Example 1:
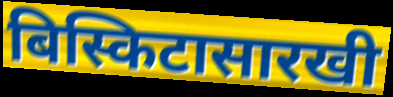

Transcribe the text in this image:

बिस्किटासारखी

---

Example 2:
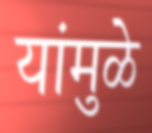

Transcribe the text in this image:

यांमुळे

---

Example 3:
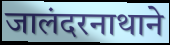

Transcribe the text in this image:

जालंदरनाथाने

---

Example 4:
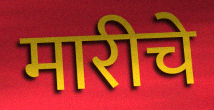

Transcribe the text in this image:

मारीचे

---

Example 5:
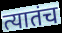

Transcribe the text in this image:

त्यातंच